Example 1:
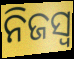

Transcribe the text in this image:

ନିଜସ୍ଵ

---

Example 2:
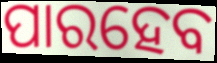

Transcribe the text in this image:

ପାରହେବ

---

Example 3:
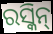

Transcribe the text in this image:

ରସ୍କିନ୍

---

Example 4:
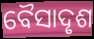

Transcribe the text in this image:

ବୈସାଦୃଶ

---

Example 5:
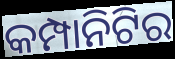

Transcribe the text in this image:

କମ୍ପାନିଟିର